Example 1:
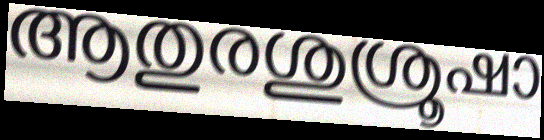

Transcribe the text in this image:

ആതുരശുശ്രൂഷാ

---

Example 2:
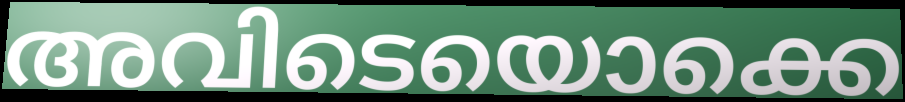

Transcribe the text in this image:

അവിടെയൊക്കെ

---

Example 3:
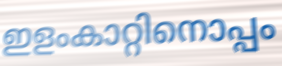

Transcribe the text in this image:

ഇളംകാറ്റിനൊപ്പം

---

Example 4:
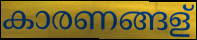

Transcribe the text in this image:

കാരണങ്ങള്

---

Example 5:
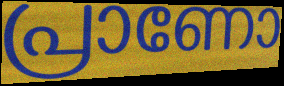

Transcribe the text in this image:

പ്രാണോ